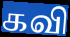
கவி